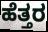
ಹೆತ್ತರ